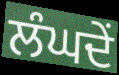
ਲੰਘਦੇਂ